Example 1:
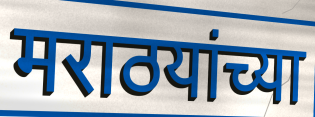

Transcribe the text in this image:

मराठयांच्या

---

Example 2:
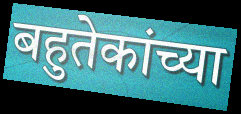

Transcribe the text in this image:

बहुतेकांच्या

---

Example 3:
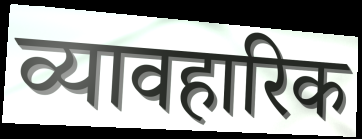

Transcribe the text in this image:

व्यावहारिक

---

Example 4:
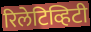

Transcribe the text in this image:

रिलेटिव्हिटी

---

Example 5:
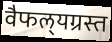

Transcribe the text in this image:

वैफल्यग्रस्त